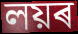
লয়ৰ